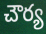
చౌర్య